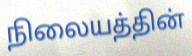
நிலையத்தின்